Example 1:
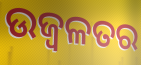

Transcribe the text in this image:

ଉଜ୍ବଳତର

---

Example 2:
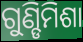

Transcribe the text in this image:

ଗୁଣ୍ଡିମିଶା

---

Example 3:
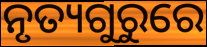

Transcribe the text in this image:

ନୃତ୍ୟଗୁରୁରେ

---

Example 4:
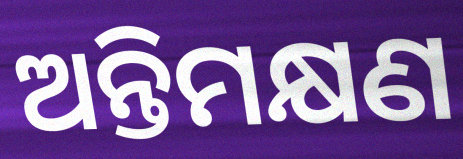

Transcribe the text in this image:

ଅନ୍ତିମକ୍ଷଣ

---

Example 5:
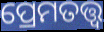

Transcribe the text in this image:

ପ୍ରେମତତ୍ତ୍ୱ